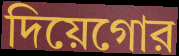
দিয়েগোর